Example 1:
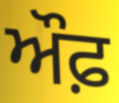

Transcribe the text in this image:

ਔਫ਼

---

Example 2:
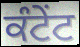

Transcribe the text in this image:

ਕੰਟੇਂਟ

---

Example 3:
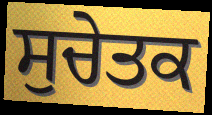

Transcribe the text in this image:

ਸੁਚੇਤਕ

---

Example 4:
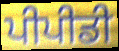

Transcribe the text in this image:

ਪੀਪੀਡੀ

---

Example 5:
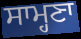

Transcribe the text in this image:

ਸਾਮ੍ਹਣਾ